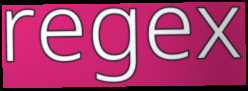
regex